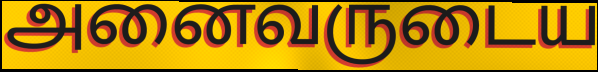
அனைவருடைய